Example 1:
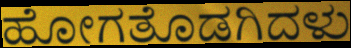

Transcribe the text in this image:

ಹೋಗತೊಡಗಿದಳು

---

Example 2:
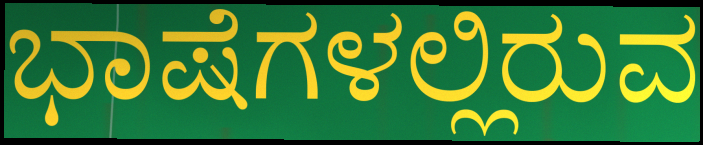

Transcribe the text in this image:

ಭಾಷೆಗಳಲ್ಲಿರುವ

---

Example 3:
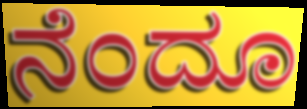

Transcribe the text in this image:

ನೆಂದೂ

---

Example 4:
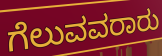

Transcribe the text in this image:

ಗೆಲುವವರಾರು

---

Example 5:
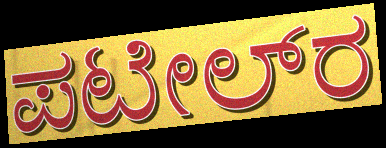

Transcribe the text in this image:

ಪಟೇಲ್‌ರ